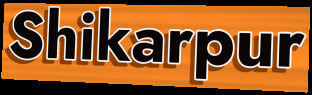
Shikarpur